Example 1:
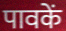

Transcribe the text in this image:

पावकें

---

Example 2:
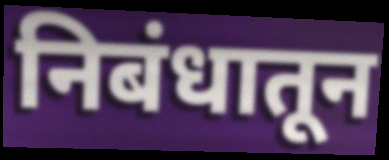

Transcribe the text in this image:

निबंधातून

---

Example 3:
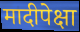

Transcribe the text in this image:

मादीपेक्षा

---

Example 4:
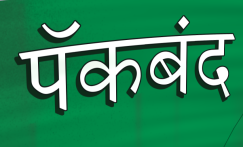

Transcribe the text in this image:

पॅकबंद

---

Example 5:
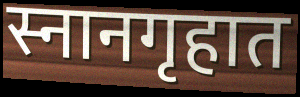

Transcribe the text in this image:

स्नानगृहात